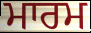
ਮਾਰਮ